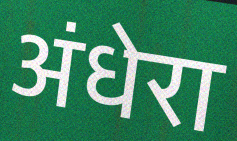
अंधेरा